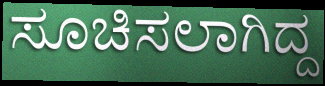
ಸೂಚಿಸಲಾಗಿದ್ದ